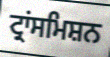
ਟ੍ਰਾਂਸਮਿਸ਼ਨ